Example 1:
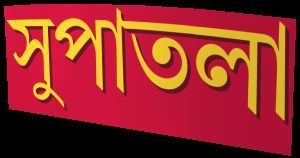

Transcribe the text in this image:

সুপাতলা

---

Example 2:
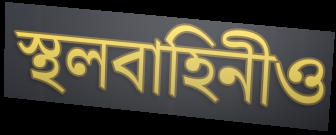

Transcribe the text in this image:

স্থলবাহিনীও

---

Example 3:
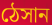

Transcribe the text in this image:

ঠেসান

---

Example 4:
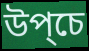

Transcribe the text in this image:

উপ্চে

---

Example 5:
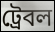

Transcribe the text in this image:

ট্রেবল